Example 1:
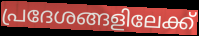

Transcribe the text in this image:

പ്രദേശങ്ങളിലേക്ക്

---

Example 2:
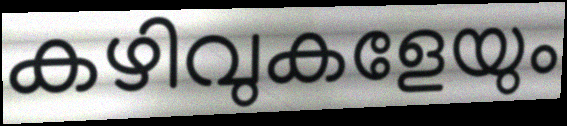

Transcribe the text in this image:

കഴിവുകളേയും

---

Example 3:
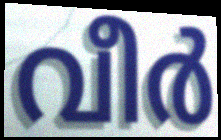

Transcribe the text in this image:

വീർ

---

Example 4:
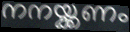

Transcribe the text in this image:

നനയ്ക്കണം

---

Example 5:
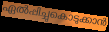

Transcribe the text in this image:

ഏൽപ്പിച്ചുകൊടുക്കാൻ